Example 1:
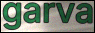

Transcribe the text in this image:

garva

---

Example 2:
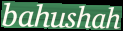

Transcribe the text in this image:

bahushah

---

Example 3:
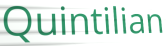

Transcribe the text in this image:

Quintilian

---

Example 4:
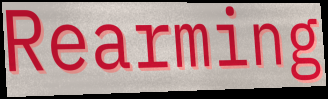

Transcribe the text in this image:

Rearming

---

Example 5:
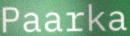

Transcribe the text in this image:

Paarka